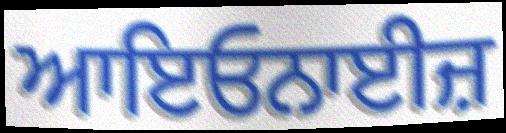
ਆਇਓਨਾਈਜ਼